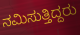
ನಮಿಸುತ್ತಿದ್ದರು